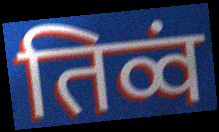
तिव्वं